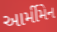
આર્મીમેન